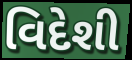
વિદેશી